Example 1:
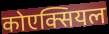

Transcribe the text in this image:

कोएक्सियल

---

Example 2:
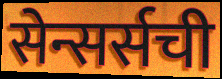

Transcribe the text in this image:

सेन्सर्सची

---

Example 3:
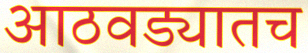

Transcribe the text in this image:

आठवड्यातच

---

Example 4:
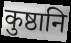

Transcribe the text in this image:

कुष्ठानि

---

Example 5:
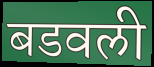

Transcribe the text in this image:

बडवली